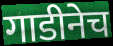
गाडीनेच